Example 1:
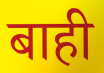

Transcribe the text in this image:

बाही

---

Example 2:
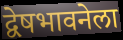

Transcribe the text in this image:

द्वेषभावनेला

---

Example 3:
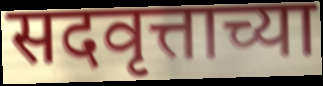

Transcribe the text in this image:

सदवृत्ताच्या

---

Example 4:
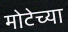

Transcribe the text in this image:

मोटेच्या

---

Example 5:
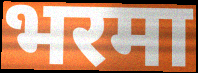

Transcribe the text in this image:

भरमा